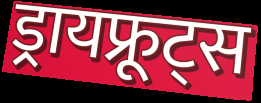
ड्रायफ्रूट्स